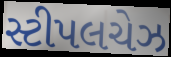
સ્ટીપલચેઝ